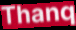
Thanq